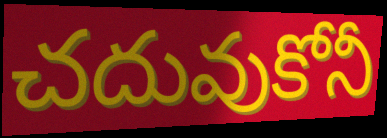
చదువుకోనీ